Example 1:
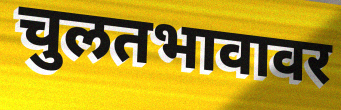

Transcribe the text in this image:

चुलतभावावर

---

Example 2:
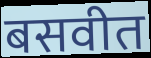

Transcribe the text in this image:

बसवीत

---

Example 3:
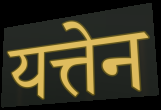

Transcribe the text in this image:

यत्तेन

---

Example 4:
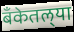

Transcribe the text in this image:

बँकेतल्या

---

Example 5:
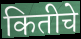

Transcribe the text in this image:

कितीचे